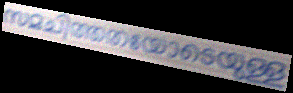
സമചിത്തതയോടെയുള്ള